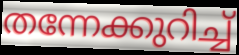
തന്നേക്കുറിച്ച്